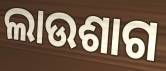
ଲାଉଶାଗ